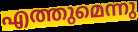
എത്തുമെന്നു